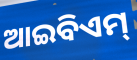
ଆଇବିଏମ୍